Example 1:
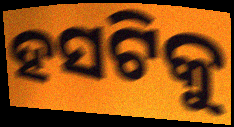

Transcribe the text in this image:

ହସଟିକୁ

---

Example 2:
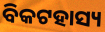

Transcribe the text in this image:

ବିକଟହାସ୍ୟ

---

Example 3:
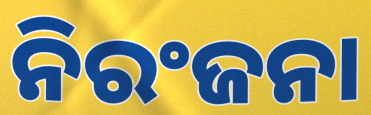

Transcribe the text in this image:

ନିରଂଜନା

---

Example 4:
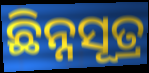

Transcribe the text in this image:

ଛିନ୍ନସୂତ୍ର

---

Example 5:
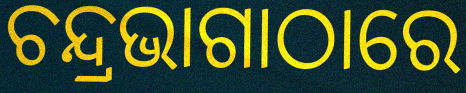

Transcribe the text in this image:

ଚନ୍ଦ୍ରଭାଗାଠାରେ